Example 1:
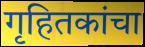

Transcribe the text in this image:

गृहितकांचा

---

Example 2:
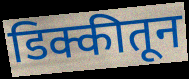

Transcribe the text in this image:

डिक्कीतून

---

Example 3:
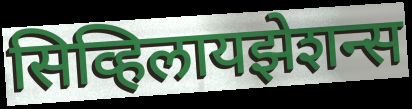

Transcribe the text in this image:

सिव्हिलायझेशन्स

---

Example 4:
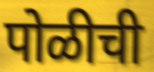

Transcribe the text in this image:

पोळीची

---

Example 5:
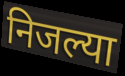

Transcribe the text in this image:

निजल्या